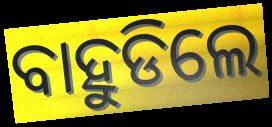
ବାହୁଡିଲେ